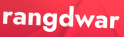
rangdwar